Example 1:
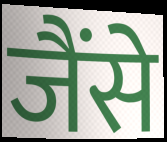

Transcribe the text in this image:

जैंसे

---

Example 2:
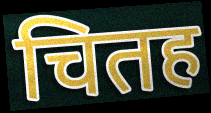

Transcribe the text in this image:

चितह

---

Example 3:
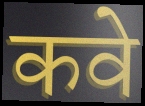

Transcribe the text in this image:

कवे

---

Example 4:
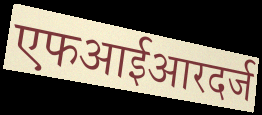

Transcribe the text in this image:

एफआईआरदर्ज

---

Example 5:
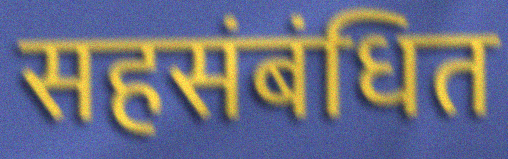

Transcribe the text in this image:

सहसंबंधित